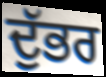
ਦੁੱਭਰ